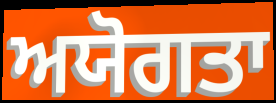
ਅਯੋਗਤਾ